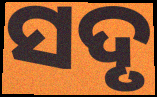
ସଦୃ